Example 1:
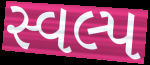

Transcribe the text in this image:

સ્વલ્પ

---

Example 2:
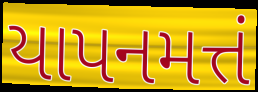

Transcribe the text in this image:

યાપનમત્તં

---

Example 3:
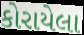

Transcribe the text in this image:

કોરાયેલા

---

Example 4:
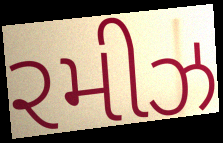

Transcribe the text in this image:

રમીઝ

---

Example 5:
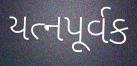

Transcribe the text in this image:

યત્નપૂર્વક